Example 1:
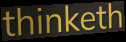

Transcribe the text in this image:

thinketh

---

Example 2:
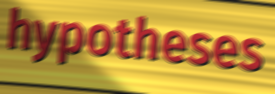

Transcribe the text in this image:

hypotheses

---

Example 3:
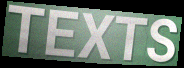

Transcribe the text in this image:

TEXTS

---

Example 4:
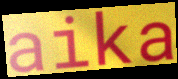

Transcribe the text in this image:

aika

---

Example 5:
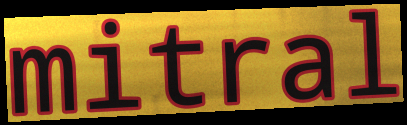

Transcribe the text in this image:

mitral